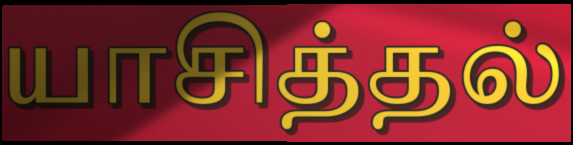
யாசித்தல்